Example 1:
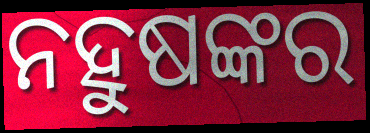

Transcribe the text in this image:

ନହୁଷଙ୍କର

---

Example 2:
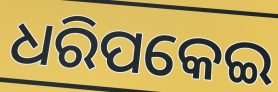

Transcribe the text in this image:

ଧରିପକେଇ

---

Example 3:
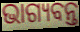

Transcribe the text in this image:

ଭାଗ୍ୟବନ୍ତ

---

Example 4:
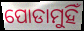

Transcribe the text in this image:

ପୋଡାମୁହିଁ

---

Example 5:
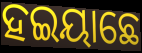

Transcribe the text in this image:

ହଇୟାଛେ